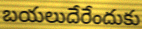
బయలుదేరేందుకు